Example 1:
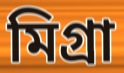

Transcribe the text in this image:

মিগ্রা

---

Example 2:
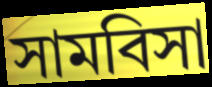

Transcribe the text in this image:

সামবিসা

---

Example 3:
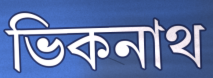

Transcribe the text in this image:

ভিকনাথ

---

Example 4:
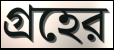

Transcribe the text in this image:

গ্রহের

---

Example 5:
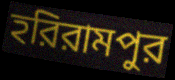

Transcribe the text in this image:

হরিরামপুর